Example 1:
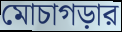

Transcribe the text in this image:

মোচাগড়ার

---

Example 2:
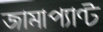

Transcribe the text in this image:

জামাপ্যাণ্ট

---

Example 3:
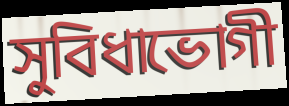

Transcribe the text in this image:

সুবিধাভোগী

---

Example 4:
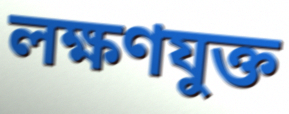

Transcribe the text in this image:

লক্ষণযুক্ত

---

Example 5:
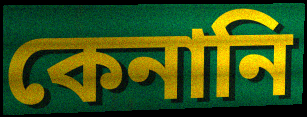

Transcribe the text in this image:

কেনানি